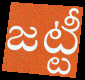
జట్టీ